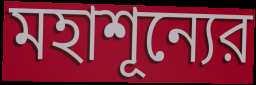
মহাশূন্যের